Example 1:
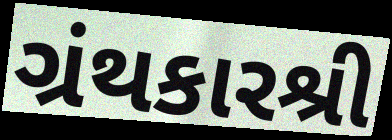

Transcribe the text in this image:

ગ્રંથકારશ્રી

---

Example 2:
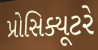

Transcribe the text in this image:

પ્રોસિક્યૂટરે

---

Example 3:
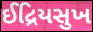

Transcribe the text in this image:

ઈદ્રિયસુખ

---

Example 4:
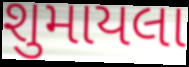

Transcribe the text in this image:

શુમાયલા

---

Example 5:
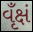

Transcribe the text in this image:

વૃઁક્ષં